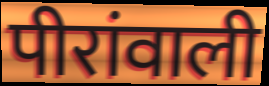
पीरांवाली